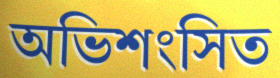
অভিশংসিত